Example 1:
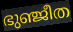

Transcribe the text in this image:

ഭുഞ്ജീത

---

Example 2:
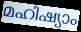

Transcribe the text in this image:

മഹിഷ്യാം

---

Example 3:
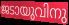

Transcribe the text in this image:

ജടായുവിനു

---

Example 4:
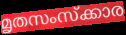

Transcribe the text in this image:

മൃതസംസ്‌ക്കാര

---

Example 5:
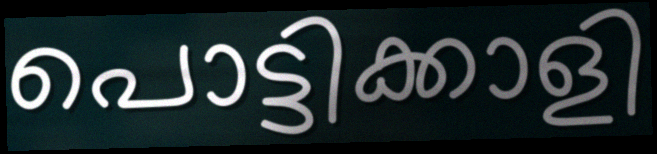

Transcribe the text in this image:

പൊട്ടിക്കാളി